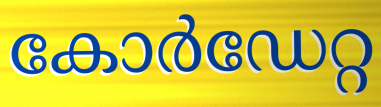
കോർഡേറ്റ